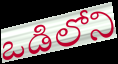
ఒడిలోని